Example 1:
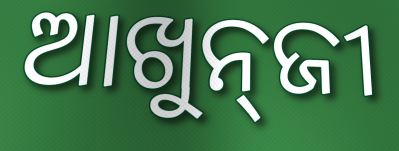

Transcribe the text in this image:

ଆଖୁନ୍‍ଜୀ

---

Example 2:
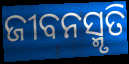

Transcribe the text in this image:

ଜୀବନସ୍ମୃତି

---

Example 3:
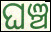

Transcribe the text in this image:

ଘଞ୍ଚ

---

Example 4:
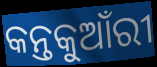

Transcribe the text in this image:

କନ୍ତକୁଆଁରୀ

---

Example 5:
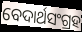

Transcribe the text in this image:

ବେଦାର୍ଥସଂଗ୍ରହ